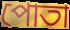
পোতা